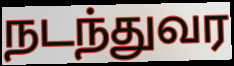
நடந்துவர